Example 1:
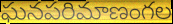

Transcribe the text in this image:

ఘనపరిమాణంగల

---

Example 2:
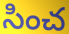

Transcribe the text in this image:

సించ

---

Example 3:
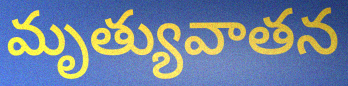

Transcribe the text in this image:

మృత్యువాతన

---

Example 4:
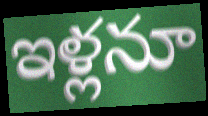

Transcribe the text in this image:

ఇళ్లనూ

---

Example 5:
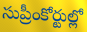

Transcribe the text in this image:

సుప్రీంకోర్టుల్లో